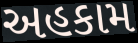
અહકામ